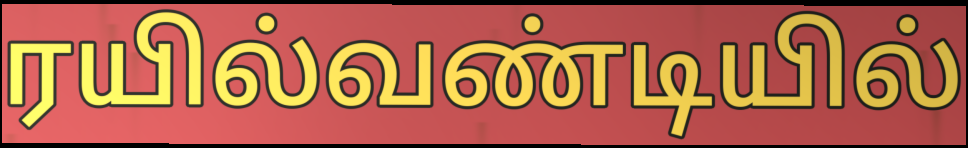
ரயில்வண்டியில்